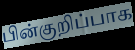
பின்குறிப்பாக